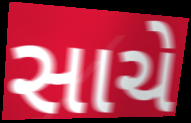
સાચે